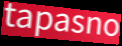
tapasno